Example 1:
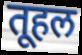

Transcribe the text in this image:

तूहल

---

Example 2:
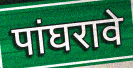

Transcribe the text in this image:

पांघरावे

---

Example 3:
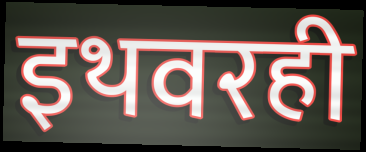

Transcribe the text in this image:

इथवरही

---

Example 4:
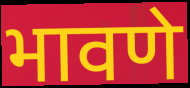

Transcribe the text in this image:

भावणे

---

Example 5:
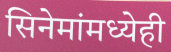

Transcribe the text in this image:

सिनेमांमध्येही